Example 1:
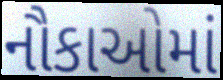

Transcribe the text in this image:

નૌકાઓમાં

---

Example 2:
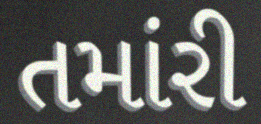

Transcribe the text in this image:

તમાંરી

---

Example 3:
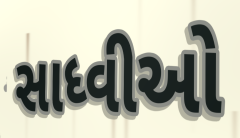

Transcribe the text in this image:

સાધ્વીઓ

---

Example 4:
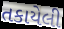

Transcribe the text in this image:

તકાયેલી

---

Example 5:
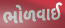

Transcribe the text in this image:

ભોળવાઈ